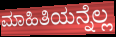
ಮಾಹಿತಿಯನ್ನೆಲ್ಲ